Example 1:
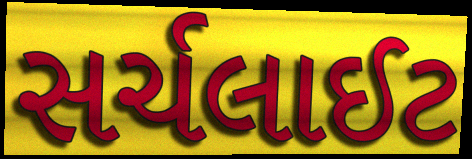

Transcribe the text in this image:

સર્ચલાઈટ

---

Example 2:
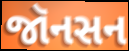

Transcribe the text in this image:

જૉનસન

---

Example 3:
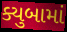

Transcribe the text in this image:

ક્યુબામાં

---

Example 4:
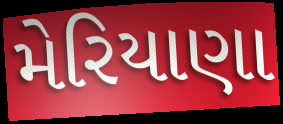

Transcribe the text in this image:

મેરિયાણા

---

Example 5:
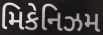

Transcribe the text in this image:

મિકેનિઝમ